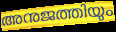
അനുജത്തിയും